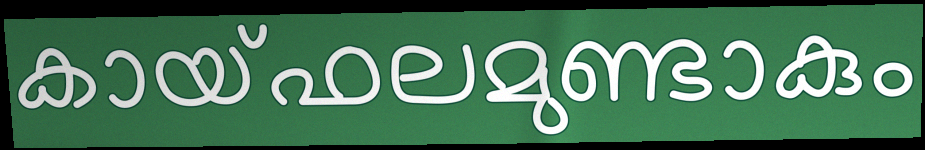
കായ്ഫലമുണ്ടാകും